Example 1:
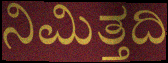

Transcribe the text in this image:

ನಿಮಿತ್ತದಿ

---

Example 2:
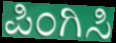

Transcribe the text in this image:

ಪಿಂಗಿಸಿ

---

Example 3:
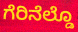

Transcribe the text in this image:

ಗೆರಿನೆಲ್ಡೊ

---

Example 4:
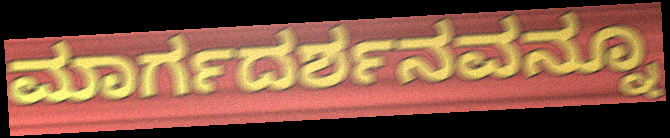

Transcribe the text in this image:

ಮಾರ್ಗದರ್ಶನವನ್ನೂ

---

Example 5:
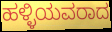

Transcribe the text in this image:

ಹಳ್ಳಿಯವರಾದ